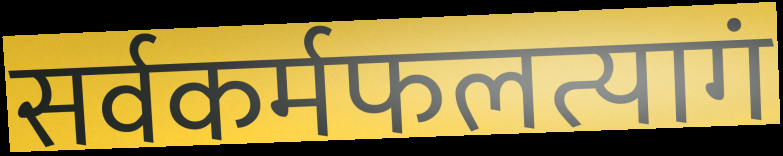
सर्वकर्मफलत्यागं